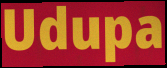
Udupa